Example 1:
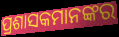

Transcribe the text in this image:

ପ୍ରଶାସକମାନଙ୍କର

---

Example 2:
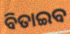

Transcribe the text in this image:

ବିତାଇବ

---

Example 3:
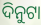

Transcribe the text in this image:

ଦିନୁଟା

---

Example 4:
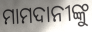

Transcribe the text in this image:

ମାମଦାନୀଙ୍କୁ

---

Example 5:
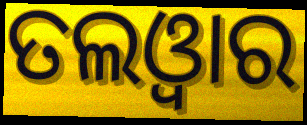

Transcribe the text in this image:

ତଲଓ୍ୱାର